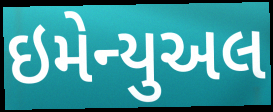
ઇમેન્યુઅલ